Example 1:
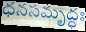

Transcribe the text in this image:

ధనసమృద్ధః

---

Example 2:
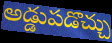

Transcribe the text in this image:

అడ్డుపడొచ్చు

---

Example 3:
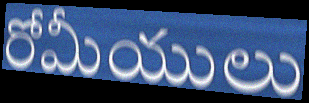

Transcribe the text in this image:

రోమీయులు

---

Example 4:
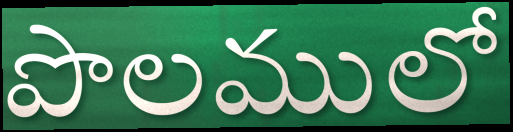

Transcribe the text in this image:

పొలములో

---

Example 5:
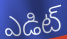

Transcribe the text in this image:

ఎడిట్